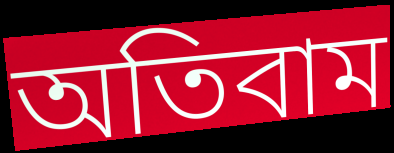
অতিবাম